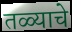
तळ्याचे